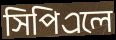
সিপিএলে